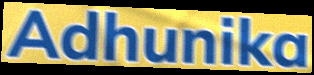
Adhunika